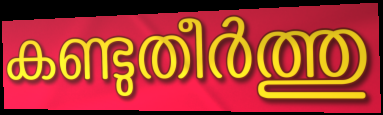
കണ്ടുതീർത്തു